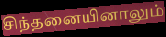
சிந்தனையினாலும்